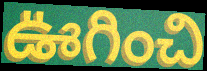
ఊగించి